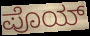
ಪೊಯ್